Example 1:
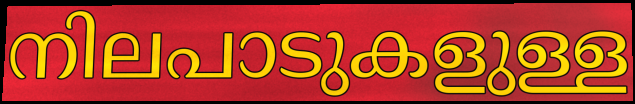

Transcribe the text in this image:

നിലപാടുകളുള്ള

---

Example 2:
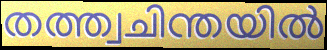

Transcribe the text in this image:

തത്ത്വചിന്തയിൽ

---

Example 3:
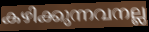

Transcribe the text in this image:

കഴിക്കുന്നവനല്ല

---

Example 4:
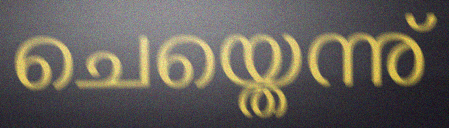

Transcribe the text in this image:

ചെയ്തെന്നു്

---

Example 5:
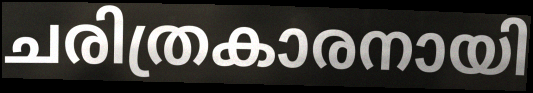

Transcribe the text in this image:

ചരിത്രകാരനായി